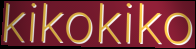
kikokiko